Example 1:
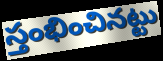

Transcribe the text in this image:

స్తంభించినట్టు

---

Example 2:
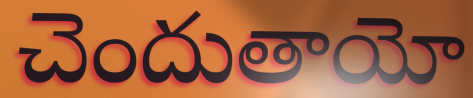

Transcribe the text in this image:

చెందుతాయో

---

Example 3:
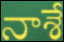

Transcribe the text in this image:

నాశే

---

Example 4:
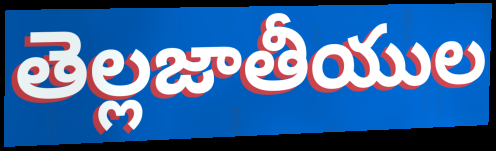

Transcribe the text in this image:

తెల్లజాతీయుల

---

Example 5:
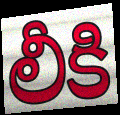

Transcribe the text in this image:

లీకి